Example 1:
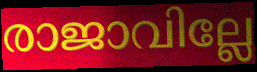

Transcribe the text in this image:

രാജാവില്ലേ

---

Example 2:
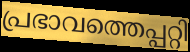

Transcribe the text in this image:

പ്രഭാവത്തെപ്പറ്റി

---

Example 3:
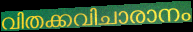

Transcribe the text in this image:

വിതക്കവിചാരാനം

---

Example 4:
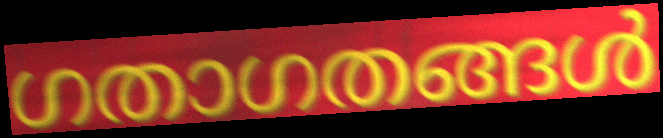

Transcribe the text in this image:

ഗതാഗതങ്ങൾ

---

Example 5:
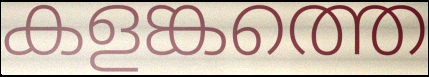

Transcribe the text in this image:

കളങ്കത്തെ